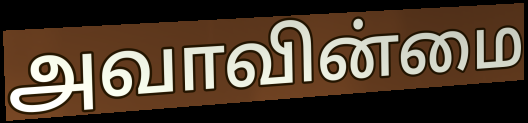
அவாவின்மை